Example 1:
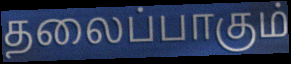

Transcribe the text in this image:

தலைப்பாகும்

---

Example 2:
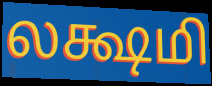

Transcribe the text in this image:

லக்ஷமி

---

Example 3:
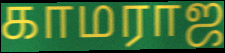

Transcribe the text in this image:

காமராஜ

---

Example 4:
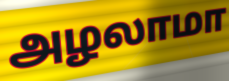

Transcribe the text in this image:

அழலாமா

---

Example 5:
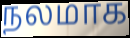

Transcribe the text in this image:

நலமாக